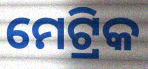
ମେଟ୍ରିକ